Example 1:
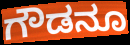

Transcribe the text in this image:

ಗೌಡನೂ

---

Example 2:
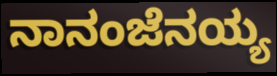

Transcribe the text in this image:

ನಾನಂಜೆನಯ್ಯ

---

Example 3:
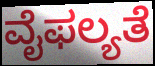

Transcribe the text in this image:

ವೈಫಲ್ಯತೆ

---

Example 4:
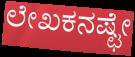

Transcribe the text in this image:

ಲೇಖಕನಷ್ಟೇ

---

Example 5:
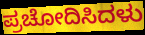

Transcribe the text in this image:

ಪ್ರಚೋದಿಸಿದಳು